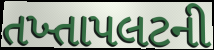
તખ્તાપલટની